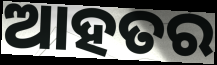
ଆହତର